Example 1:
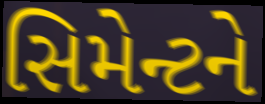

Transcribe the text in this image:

સિમેન્ટને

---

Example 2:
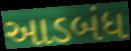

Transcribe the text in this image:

આડબંધ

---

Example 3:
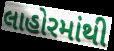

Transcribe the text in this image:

લાહોરમાંથી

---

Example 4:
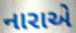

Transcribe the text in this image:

નારાએ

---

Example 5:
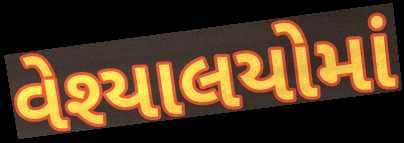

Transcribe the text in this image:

વેશ્યાલયોમાં